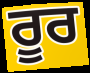
ਰੂਰ